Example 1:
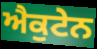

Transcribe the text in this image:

ਐਕੁਟੇਨ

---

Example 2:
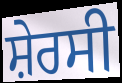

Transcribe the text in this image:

ਸ਼ੇਰਸੀ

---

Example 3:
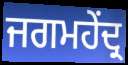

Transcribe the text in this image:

ਜਗਮਹੇਂਦ੍ਰ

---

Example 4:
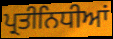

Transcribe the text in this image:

ਪ੍ਰਤੀਨਿਧੀਆਂ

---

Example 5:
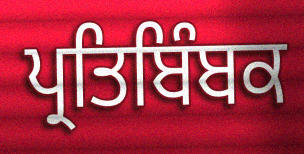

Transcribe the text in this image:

ਪ੍ਰਤਿਬਿੰਬਕ